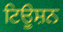
ਟਿਊਸ਼ਨ